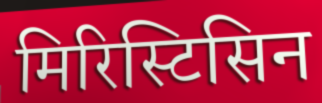
मिरिस्टिसिन